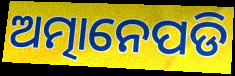
ଅତ୍ମାନେପଡି